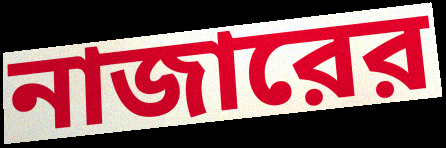
নাজারের